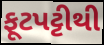
ફૂટપટ્ટીથી